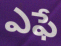
ఎఫే